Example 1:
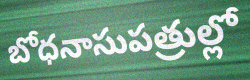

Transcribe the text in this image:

బోధనాసుపత్రుల్లో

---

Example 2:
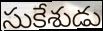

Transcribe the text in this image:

సుకేశుడు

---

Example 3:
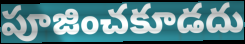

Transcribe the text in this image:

పూజించకూడదు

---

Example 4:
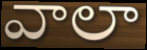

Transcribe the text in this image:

వాలా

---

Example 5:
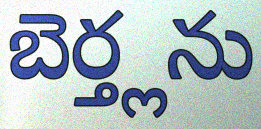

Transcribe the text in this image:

బెర్త్లను